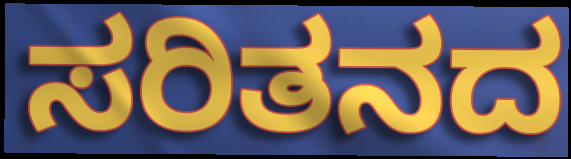
ಸರಿತನದ